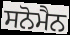
ਸਨੋਮੈਨ